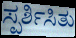
ಸ್ಪರ್ಶಿಸಿತು